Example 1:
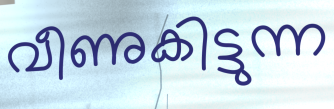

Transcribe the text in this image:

വീണുകിട്ടുന്ന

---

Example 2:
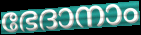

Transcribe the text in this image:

ഭേദാനാം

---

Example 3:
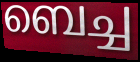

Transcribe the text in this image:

ബെച്ച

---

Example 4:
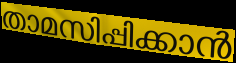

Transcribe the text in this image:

താമസിപ്പിക്കാൻ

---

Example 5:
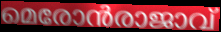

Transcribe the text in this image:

മെരോൻരാജാവ്